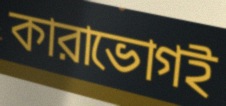
কারাভোগই